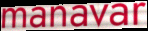
manavar